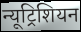
न्यूट्रिशियन